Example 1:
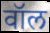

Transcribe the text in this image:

वॉल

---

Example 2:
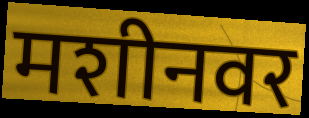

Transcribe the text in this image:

मशीनवर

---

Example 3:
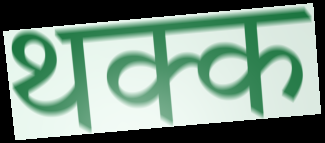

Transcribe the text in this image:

थक्क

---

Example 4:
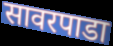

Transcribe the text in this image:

सावरपाडा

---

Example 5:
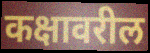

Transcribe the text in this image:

कक्षावरील